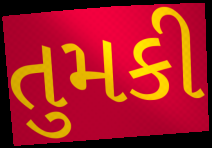
તુમકી